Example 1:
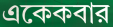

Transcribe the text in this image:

একেকবার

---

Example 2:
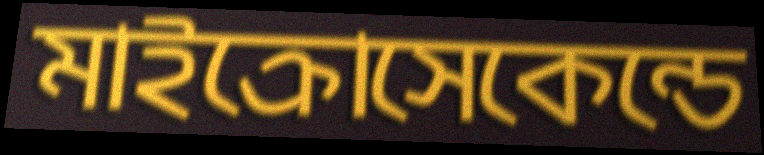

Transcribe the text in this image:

মাইক্রোসেকেন্ডে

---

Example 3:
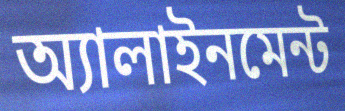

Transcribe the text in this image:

অ্যালাইনমেন্ট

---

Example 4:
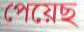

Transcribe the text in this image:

পেয়েছ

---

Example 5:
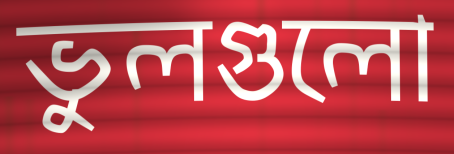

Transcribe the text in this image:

ভুলগুলো